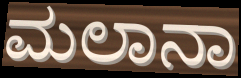
ಮಲಾನಾ